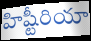
హిష్టీరియా